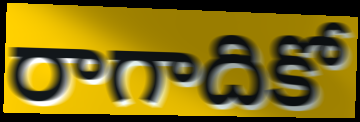
రాగాదికో